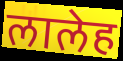
लालेह